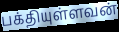
பக்தியுள்ளவன்